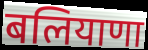
बलियाणा